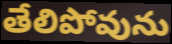
తేలిపోవును